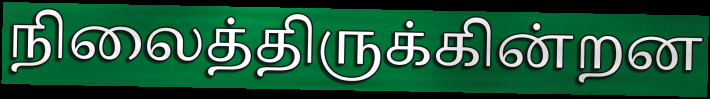
நிலைத்திருக்கின்றன